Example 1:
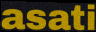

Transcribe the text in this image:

asati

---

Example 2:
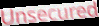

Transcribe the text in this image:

Unsecured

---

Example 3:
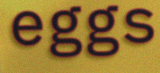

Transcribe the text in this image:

eggs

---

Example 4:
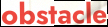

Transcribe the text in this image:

obstacle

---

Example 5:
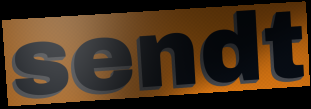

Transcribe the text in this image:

sendt